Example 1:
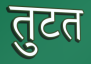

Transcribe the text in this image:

तुटत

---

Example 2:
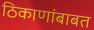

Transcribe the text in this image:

ठिकाणांबाबत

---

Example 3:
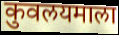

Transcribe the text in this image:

कुवलयमाला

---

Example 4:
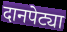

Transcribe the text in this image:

दानपेट्या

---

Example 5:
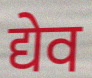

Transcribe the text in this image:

द्येव